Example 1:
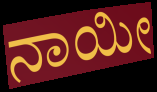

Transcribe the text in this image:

ನಾಯೀ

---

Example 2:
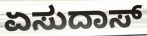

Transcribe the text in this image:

ಏಸುದಾಸ್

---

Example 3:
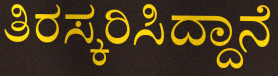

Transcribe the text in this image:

ತಿರಸ್ಕರಿಸಿದ್ದಾನೆ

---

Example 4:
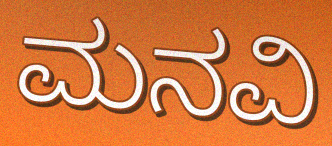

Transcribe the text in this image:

ಮನವಿ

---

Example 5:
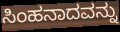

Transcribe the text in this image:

ಸಿಂಹನಾದವನ್ನು